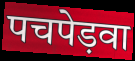
पचपेड़वा